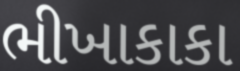
ભીખાકાકા